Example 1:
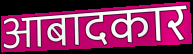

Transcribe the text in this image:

आबादकार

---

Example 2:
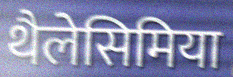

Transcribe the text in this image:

थैलेसिमिया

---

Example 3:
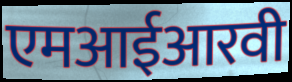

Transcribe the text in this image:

एमआईआरवी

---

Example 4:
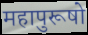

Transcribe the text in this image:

महापुरूषो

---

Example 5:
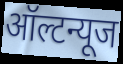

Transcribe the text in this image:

ऑल्टन्यूज